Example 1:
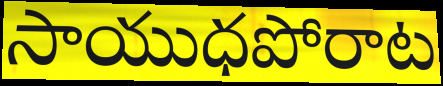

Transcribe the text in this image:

సాయుధపోరాట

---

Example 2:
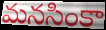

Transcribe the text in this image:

మనసింకా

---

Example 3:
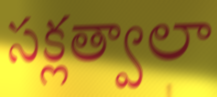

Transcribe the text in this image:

సక్లత్వాలా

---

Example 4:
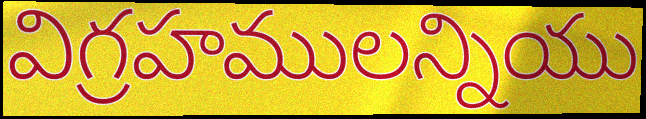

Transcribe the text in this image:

విగ్రహములన్నియు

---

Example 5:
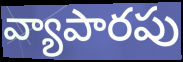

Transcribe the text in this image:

వ్యాపారపు